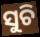
ସୁଚି